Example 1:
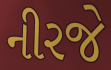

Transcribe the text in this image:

નીરજે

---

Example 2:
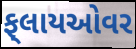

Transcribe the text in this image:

ફ્‌લાયઓવર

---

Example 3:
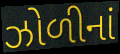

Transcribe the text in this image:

ઝોળીનાં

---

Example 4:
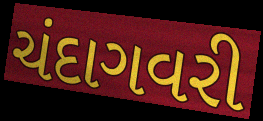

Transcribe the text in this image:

ચંદાગવરી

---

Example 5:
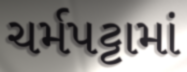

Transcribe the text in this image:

ચર્મપટ્ટામાં